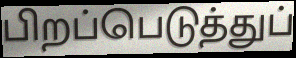
பிறப்பெடுத்துப்